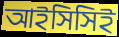
আইসিসিই